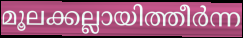
മൂലക്കല്ലായിത്തീർന്ന